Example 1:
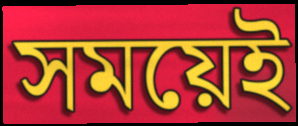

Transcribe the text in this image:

সময়েই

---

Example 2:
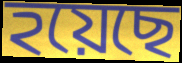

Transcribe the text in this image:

হয়েছে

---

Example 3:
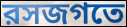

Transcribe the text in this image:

রসজগতে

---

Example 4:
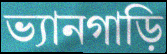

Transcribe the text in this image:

ভ্যানগাড়ি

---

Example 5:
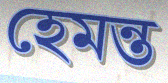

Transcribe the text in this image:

হেমন্ত